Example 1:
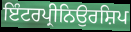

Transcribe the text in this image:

ਇੰਟਰਪ੍ਰੀਨਿਉਰਸ਼ਿਪ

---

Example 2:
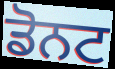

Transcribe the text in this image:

ਡੋਨਟ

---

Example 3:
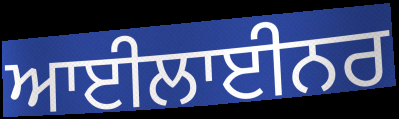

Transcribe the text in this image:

ਆਈਲਾਈਨਰ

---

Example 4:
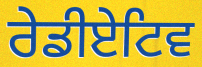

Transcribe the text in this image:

ਰੇਡੀਏਟਿਵ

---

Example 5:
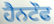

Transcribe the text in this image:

ਹੈਨਟੌਫ